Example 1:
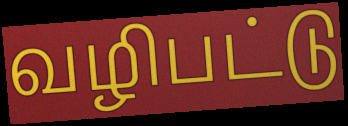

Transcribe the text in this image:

வழிபட்டு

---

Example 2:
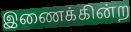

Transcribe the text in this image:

இணைக்கின்ற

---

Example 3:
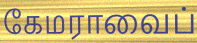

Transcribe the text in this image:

கேமராவைப்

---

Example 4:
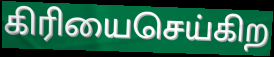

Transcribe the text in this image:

கிரியைசெய்கிற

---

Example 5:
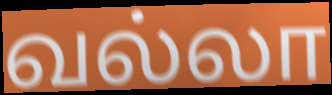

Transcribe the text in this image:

வல்லா